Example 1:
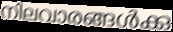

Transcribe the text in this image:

നിലവാരങ്ങൾക്കു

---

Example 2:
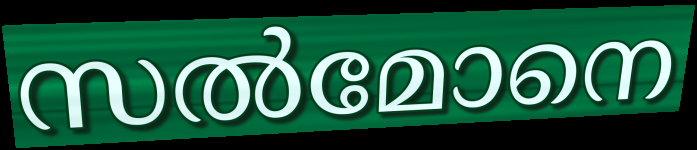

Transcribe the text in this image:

സൽമോനെ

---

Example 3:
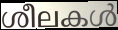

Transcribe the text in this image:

ശീലകൾ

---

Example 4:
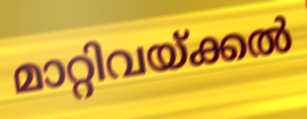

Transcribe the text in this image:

മാറ്റിവയ്ക്കൽ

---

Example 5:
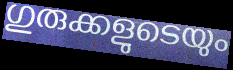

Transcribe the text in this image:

ഗുരുക്കളുടെയും